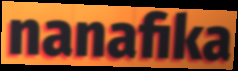
nanafika